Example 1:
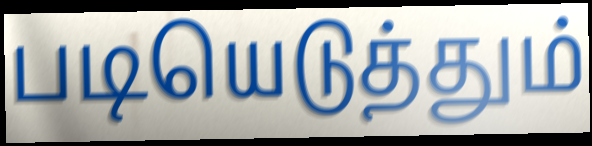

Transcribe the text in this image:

படியெடுத்தும்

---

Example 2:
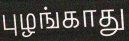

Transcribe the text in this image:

புழங்காது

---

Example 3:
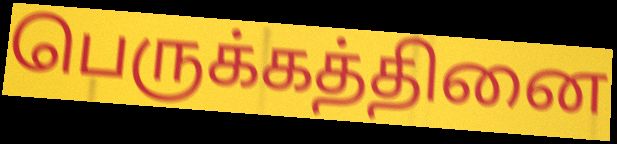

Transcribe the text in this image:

பெருக்கத்தினை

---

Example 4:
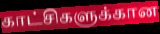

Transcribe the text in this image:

காட்சிகளுக்கான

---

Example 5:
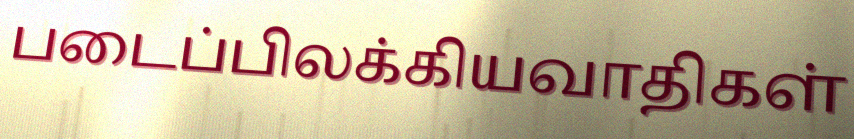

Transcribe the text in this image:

படைப்பிலக்கியவாதிகள்